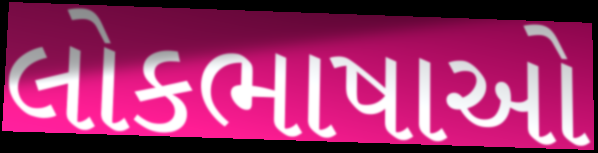
લોકભાષાઓ